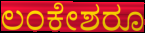
ಲಂಕೇಶರೂ